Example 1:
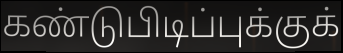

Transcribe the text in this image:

கண்டுபிடிப்புக்குக்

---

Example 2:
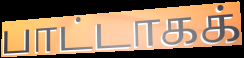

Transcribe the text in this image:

பாட்டாகக்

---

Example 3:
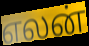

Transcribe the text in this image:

எலன்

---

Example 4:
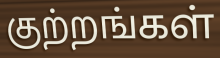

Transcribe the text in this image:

குற்றங்கள்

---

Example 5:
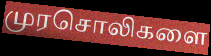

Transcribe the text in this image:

முரசொலிகளை